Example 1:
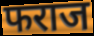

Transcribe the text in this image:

फराज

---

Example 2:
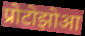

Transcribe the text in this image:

प्रोटोझोआ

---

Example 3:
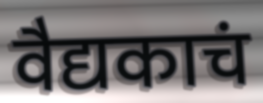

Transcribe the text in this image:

वैद्यकाचं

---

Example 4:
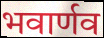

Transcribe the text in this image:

भवार्णव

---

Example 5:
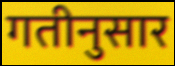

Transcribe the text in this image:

गतीनुसार